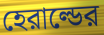
হেরাল্ডের